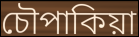
চৌপাকিয়া